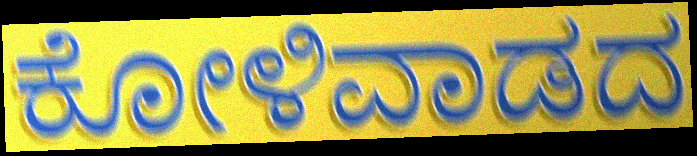
ಕೋಳಿವಾಡದ